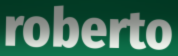
roberto